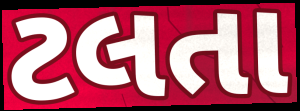
ટલતા